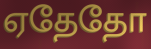
ஏதேதோ